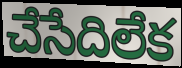
చేసేదిలేక